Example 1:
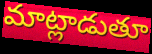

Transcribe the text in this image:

మాట్లాడుతూ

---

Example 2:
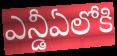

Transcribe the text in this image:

ఎన్డీఏలోకి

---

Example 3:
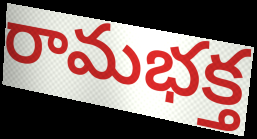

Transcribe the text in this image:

రామభక్త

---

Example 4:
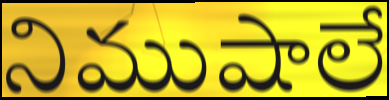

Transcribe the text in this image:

నిముషాలే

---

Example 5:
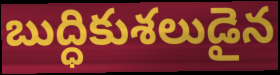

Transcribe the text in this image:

బుద్ధికుశలుడైన